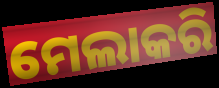
ମେଲାକରି